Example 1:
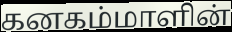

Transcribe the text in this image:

கனகம்மாளின்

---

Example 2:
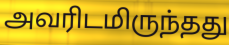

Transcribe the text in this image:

அவரிடமிருந்தது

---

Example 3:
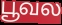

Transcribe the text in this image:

பூவல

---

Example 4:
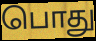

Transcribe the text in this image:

பொது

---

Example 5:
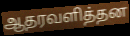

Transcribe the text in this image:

ஆதரவளித்தன